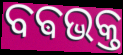
ବଵଭକ୍ତ